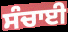
ਸੰਚਾਈ